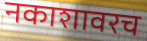
नकाशावरच